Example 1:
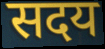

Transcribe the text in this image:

सदय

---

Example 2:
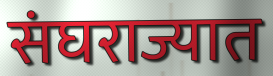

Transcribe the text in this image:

संघराज्यात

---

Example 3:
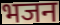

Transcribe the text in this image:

भजन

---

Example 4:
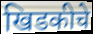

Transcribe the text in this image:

खिडकीचे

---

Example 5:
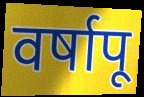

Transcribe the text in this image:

वर्षापू